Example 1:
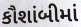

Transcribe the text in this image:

કૌશાંબીમાં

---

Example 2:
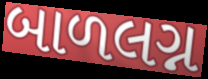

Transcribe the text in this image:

બાળલગ્ન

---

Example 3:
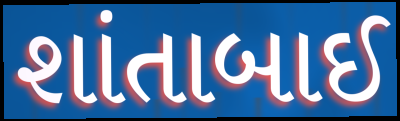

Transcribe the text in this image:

શાંતાબાઈ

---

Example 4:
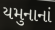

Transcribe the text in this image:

યમુનાનાં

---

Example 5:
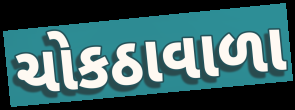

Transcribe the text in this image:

ચોકઠાવાળા